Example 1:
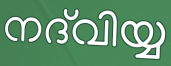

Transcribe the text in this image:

നദ്‌വിയ്യ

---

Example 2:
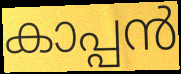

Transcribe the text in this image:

കാപ്പൻ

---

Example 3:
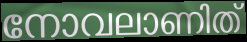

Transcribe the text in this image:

നോവലാണിത്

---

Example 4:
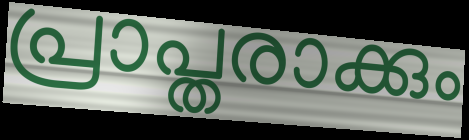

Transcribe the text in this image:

പ്രാപ്തരാക്കും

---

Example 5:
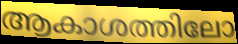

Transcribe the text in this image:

ആകാശത്തിലോ